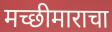
मच्छीमाराचा